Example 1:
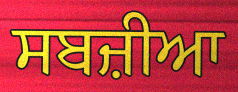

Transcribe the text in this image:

ਸਬਜ਼ੀਆ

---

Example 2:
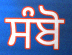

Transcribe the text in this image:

ਸੰਬੋ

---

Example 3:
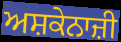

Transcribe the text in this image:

ਅਸ਼ਕੇਨਾਜ਼ੀ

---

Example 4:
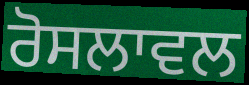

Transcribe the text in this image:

ਰੋਸਲਾਵਲ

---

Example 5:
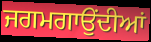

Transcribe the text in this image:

ਜਗਮਗਾਉਂਦੀਆਂ